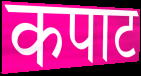
कपाट